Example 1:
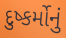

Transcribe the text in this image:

દુષ્કર્મોનું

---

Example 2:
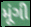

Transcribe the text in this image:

મૂંગી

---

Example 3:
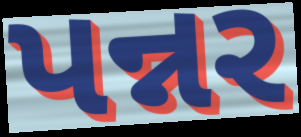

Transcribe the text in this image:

પન્નર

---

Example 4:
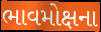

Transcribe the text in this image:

ભાવમોક્ષના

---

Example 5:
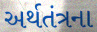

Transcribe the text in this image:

અર્થતંત્રના